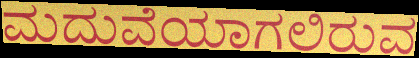
ಮದುವೆಯಾಗಲಿರುವ